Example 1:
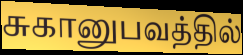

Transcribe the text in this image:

சுகானுபவத்தில்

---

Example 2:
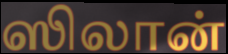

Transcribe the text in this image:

ஸிலான்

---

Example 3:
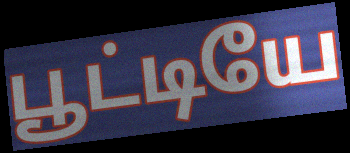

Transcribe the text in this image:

பூட்டியே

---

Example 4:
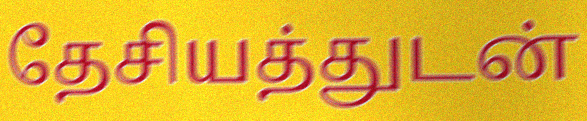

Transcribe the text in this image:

தேசியத்துடன்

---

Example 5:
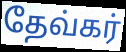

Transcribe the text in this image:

தேவ்கர்